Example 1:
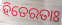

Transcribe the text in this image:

ହିତେରତାଃ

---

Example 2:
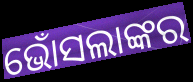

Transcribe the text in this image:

ଭୋଁସଲାଙ୍କର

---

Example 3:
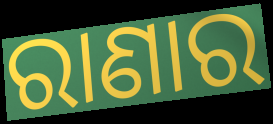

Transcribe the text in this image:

ରାଣାର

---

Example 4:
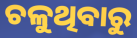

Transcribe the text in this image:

ଚଳୁଥିବାରୁ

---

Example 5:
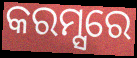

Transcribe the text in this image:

କରମ୍ସରେ